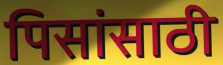
पिसांसाठी